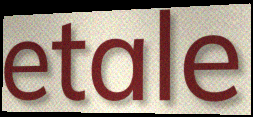
etale